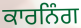
ਕਾਰਨਿੰਗ